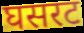
घसरट